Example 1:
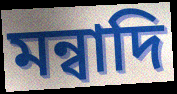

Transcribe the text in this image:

মন্বাদি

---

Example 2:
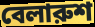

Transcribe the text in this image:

বেলারুশ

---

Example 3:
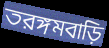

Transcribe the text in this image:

তরঙ্গমবাড়ি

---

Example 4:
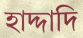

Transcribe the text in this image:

হাদ্দাদি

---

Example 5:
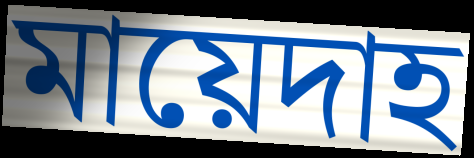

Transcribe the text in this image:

মায়েদাহ